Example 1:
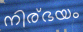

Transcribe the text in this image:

നിര്ഭയം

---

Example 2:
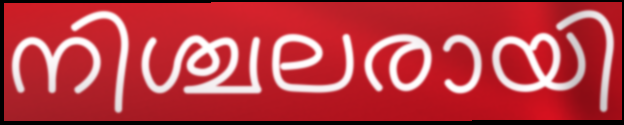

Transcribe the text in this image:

നിശ്ചലരായി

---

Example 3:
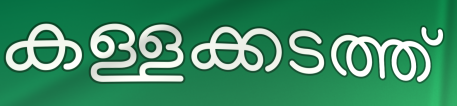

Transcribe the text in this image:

കള്ളക്കടത്ത്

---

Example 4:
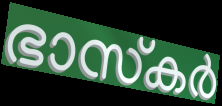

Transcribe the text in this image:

ഭാസ്‌കർ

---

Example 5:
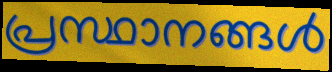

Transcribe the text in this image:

പ്രസ്ഥാനങ്ങൾ